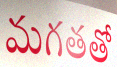
మగతతో